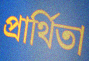
প্রার্থিতা